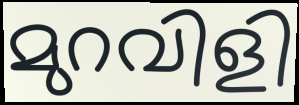
മുറവിളി